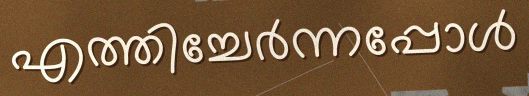
എത്തിച്ചേർന്നപ്പോൾ